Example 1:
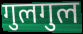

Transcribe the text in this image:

गुलगुल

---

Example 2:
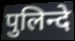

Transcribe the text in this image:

पुलिन्दे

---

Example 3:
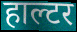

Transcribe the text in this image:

हाल्टर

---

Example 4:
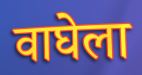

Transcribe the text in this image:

वाघेला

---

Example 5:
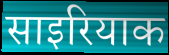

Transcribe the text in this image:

साइरियाक